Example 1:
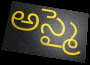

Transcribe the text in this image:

అస్మై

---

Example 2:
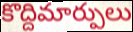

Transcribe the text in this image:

కొద్దిమార్పులు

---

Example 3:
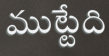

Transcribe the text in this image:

ముట్టేది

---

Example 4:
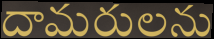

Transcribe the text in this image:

దామరులను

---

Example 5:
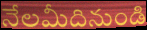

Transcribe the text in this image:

నేలమీదినుండి